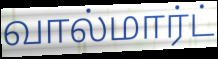
வால்மார்ட்